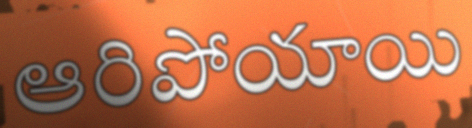
ఆరిపోయాయి